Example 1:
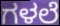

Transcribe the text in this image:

ಗಳಲೆ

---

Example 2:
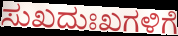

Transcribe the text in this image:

ಸುಖದುಃಖಗಳಿಗೆ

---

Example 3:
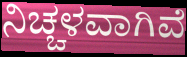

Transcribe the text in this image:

ನಿಚ್ಚಳವಾಗಿವೆ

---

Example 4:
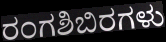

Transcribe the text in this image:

ರಂಗಶಿಬಿರಗಳು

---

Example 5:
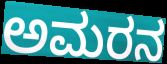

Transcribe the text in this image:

ಅಮರನ